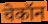
चेकॉन